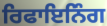
ਰਿਫਾਇਨਿੰਗ